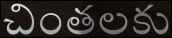
చింతలకు